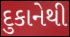
દુકાનેથી